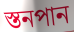
স্তনপান